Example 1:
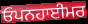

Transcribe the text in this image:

ਓਪਨਹਾਈਮਰ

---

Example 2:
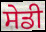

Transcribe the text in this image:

ਸੇਡੀ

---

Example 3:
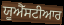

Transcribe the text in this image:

ਯੂਐੱਸਟੀਆਰ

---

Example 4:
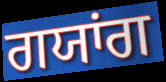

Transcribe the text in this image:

ਗਯਾਂਗ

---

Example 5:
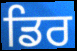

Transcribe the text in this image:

ਡਿਰ